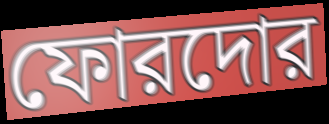
ফোরদোর